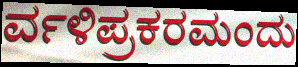
ರ್ವಳಿಪ್ರಕರಮಂದು